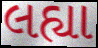
લહ્યા